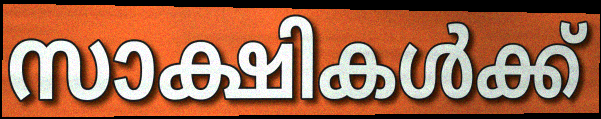
സാക്ഷികൾക്ക്